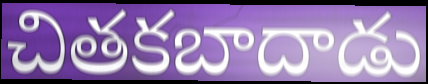
చితకబాదాడు